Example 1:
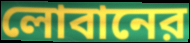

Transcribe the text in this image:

লোবানের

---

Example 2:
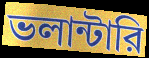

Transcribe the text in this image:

ভলান্টারি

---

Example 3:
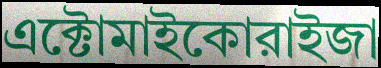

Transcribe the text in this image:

এক্টোমাইকোরাইজা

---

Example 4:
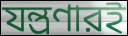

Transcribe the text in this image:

যন্ত্রণারই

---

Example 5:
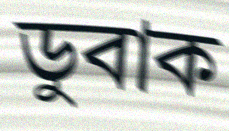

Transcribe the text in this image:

ডুবাক